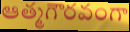
ఆత్మగౌరవంగా